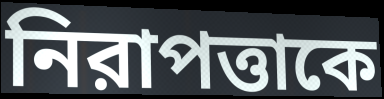
নিরাপত্তাকে